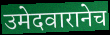
उमेदवारानेच